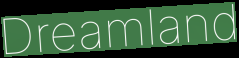
Dreamland